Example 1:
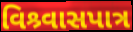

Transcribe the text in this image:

વિશ્ર્વાસપાત્ર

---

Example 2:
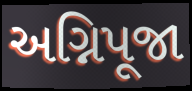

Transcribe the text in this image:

અગ્નિપૂજા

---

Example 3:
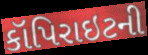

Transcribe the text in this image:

કૉપિરાઇટની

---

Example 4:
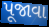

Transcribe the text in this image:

પૂજાવા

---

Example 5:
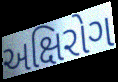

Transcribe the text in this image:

અક્ષિરોગ